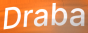
Draba